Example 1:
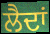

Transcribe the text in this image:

ਲੈਦਾਂ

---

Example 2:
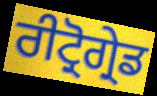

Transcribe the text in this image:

ਰੀਟ੍ਰੋਗ੍ਰੇਡ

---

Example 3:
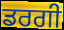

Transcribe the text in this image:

ਡਰਗੀ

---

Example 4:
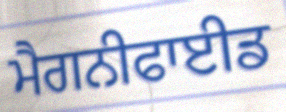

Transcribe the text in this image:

ਮੈਗਨੀਫਾਈਡ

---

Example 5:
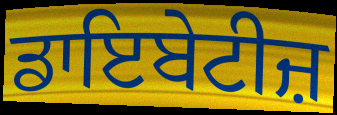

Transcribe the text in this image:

ਡਾਇਬੇਟੀਜ਼